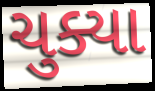
ચુક્યા